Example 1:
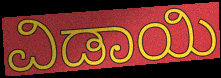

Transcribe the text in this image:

ವಿಡಾಯಿ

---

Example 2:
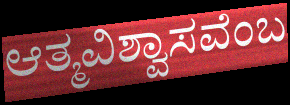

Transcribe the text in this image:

ಆತ್ಮವಿಶ್ವಾಸವೆಂಬ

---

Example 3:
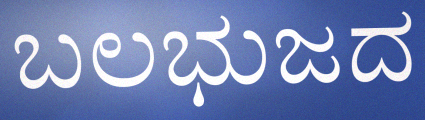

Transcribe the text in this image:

ಬಲಭುಜದ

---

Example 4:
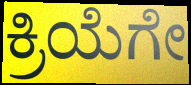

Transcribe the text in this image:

ಕ್ರಿಯೆಗೇ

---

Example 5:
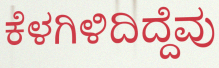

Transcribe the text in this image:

ಕೆಳಗಿಳಿದಿದ್ದೆವು